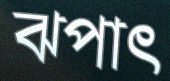
ঝপাৎ